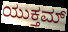
ಯುಕ್ತಮ್